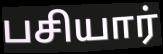
பசியார்